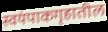
स्वयंपाकगृहातील